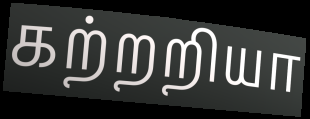
கற்றறியா